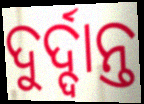
ଦୁର୍ଦ୍ଦାନ୍ତ